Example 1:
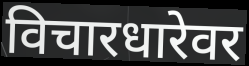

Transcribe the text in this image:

विचारधारेवर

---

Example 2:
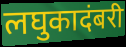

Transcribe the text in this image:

लघुकादंबरी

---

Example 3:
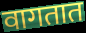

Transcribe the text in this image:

वागतात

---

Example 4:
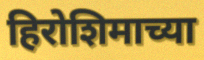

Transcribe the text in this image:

हिरोशिमाच्या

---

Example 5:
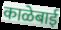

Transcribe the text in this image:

काळेबाई